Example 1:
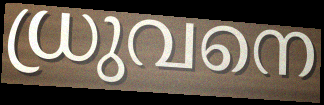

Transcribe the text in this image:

ധ്രുവനെ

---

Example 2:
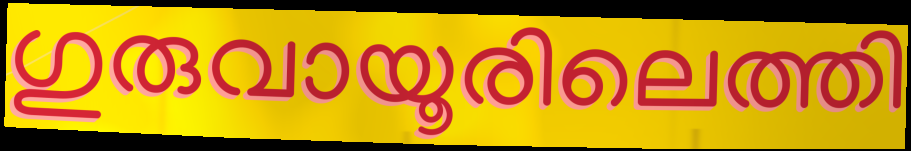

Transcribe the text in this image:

ഗുരുവായൂരിലെത്തി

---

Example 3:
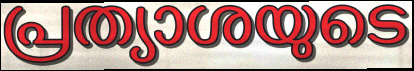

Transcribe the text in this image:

പ്രത്യാശയുടെ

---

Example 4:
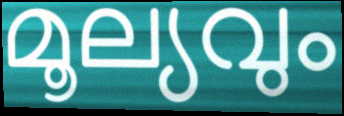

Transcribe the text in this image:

മൂല്യവും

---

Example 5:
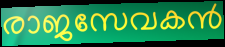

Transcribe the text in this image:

രാജസേവകൻ